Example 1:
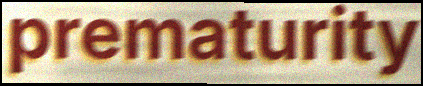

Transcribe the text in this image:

prematurity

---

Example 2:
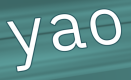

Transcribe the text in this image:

yao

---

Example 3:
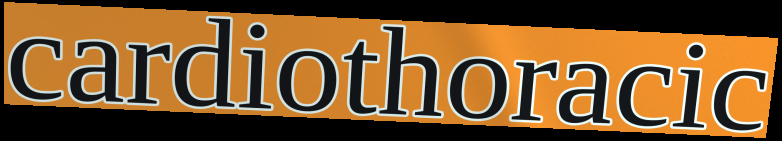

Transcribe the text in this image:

cardiothoracic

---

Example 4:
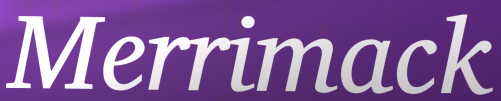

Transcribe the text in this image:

Merrimack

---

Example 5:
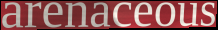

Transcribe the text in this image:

arenaceous